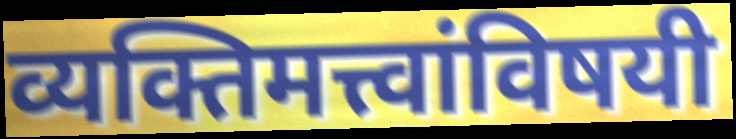
व्यक्तिमत्त्वांविषयी